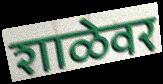
शाळेवर